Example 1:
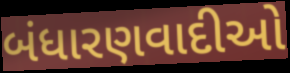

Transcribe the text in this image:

બંધારણવાદીઓ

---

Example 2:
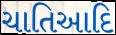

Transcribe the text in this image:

ચાતિઆદિ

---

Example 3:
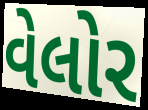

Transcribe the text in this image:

વેલોર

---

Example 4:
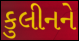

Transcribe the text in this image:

કુલીનને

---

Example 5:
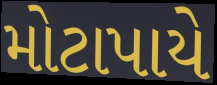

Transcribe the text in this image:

મોટાપાયે